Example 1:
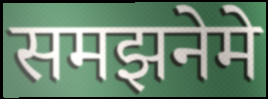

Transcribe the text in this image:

समझनेमे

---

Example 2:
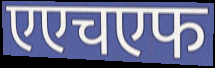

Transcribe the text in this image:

एएचएफ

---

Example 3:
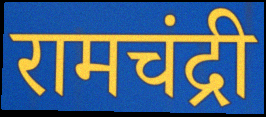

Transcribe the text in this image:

रामचंद्री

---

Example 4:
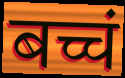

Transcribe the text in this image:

बच्चं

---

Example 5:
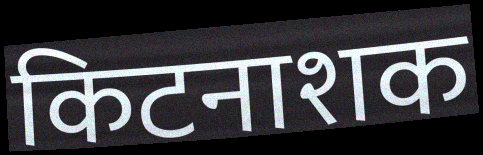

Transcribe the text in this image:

किटनाशक